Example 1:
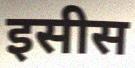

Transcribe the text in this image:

इसीस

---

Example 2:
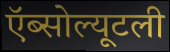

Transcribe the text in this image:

ऍब्सोल्यूटली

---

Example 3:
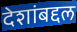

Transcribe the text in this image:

देशांबद्दल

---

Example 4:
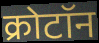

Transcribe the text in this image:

क्रोटॉन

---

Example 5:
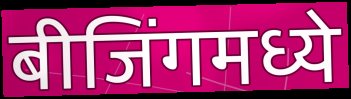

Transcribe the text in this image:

बीजिंगमध्ये